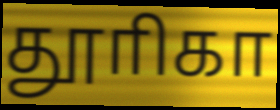
தூரிகா